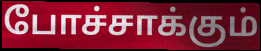
போச்சாக்கும்